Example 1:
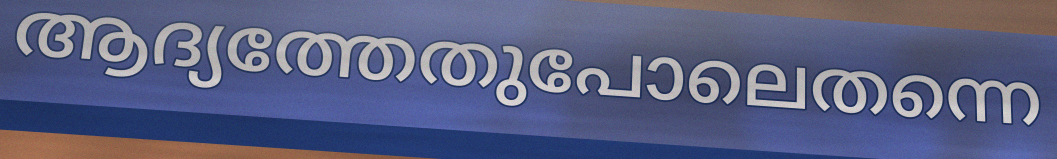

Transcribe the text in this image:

ആദ്യത്തേതുപോലെതന്നെ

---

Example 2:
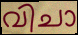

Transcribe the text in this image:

വിചാ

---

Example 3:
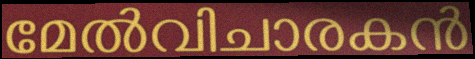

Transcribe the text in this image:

മേൽവിചാരകൻ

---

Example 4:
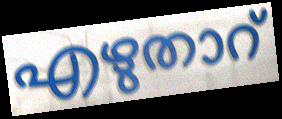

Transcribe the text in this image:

എഴുതാറ്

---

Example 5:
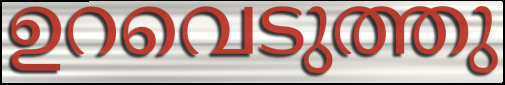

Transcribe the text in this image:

ഉറവെടുത്തു